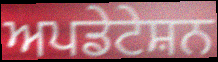
ਅਪਡੇਟੇਸ਼ਨ